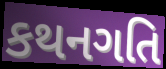
કથનગતિ